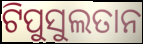
ଟିପୁସୁଲତାନ